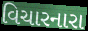
વિચારનારા